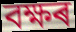
বক্ষৰ